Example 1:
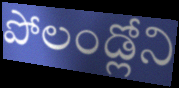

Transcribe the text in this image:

పోలండ్లోని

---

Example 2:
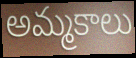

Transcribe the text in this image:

అమ్మకాలు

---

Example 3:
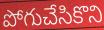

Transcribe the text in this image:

పోగుచేసికొని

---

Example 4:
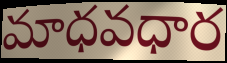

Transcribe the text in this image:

మాధవధార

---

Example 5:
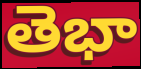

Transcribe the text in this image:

తెభా